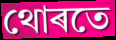
থোৰতে